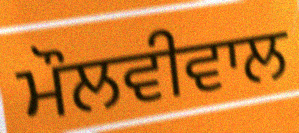
ਮੌਲਵੀਵਾਲ